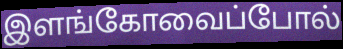
இளங்கோவைப்போல்